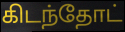
கிடந்தோட்